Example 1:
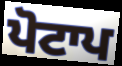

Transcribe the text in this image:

ਪੋਟਾਪ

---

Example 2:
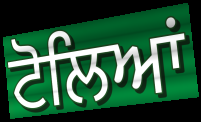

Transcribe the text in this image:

ਟੋਲਿਆਂ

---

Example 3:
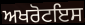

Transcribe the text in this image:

ਅਖਰੋਟਇਸ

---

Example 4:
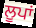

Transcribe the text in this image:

ਲੂਪਾਂ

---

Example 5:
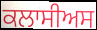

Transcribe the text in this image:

ਕਲਾਸੀਅਸ